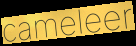
cameleer